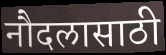
नौदलासाठी